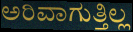
ಅರಿವಾಗುತ್ತಿಲ್ಲ